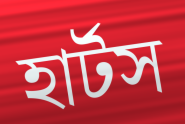
হার্টস